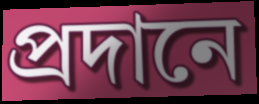
প্ৰদানে